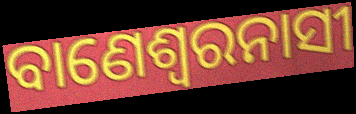
ବାଣେଶ୍ୱରନାସୀ